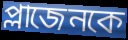
প্লাজেনকে